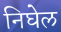
निघेल